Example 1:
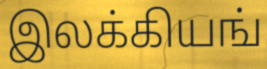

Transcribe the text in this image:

இலக்கியங்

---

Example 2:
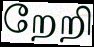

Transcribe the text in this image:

றேறி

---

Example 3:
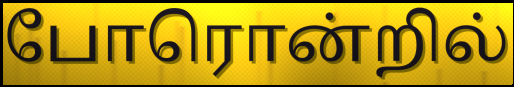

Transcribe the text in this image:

போரொன்றில்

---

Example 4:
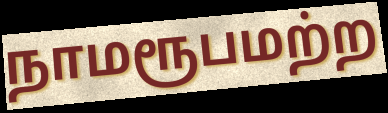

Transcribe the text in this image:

நாமரூபமற்ற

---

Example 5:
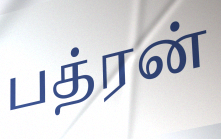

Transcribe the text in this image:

பத்ரன்